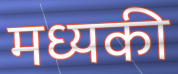
मध्यकी